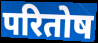
परितोष